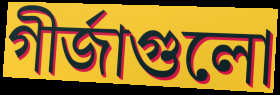
গীর্জাগুলো